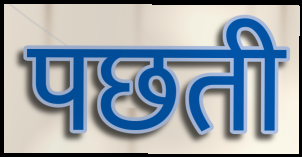
पछती